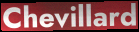
Chevillard